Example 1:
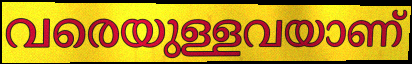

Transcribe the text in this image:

വരെയുള്ളവയാണ്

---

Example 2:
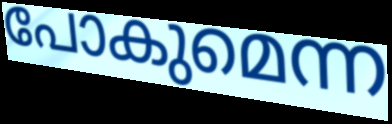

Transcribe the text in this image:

പോകുമെന്ന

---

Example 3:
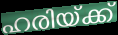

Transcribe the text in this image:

ഹരിയ്‌ക്ക്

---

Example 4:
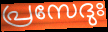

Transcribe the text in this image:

പ്രസേദുഃ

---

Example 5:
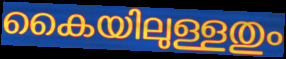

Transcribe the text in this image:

കൈയിലുള്ളതും